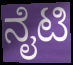
ನೈಟಿ